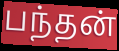
பந்தன்